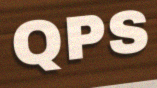
QPS